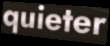
quieter